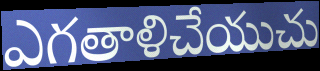
ఎగతాళిచేయుచు